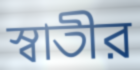
স্বাতীর